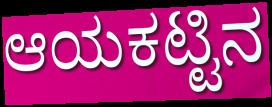
ಆಯಕಟ್ಟಿನ